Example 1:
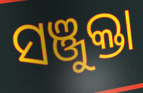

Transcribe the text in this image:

ସଞ୍ଜୁକ୍ତା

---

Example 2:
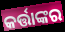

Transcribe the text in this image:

କର୍ତ୍ତାଙ୍କର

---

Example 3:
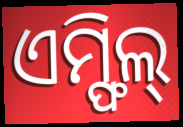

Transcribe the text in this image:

ଏମ୍ଫିଲ୍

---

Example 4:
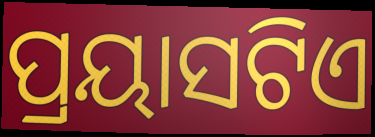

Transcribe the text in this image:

ପ୍ରୟାସଟିଏ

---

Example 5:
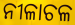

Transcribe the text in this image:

ନୀଳାଚଳ